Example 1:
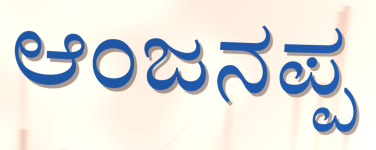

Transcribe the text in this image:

ಆಂಜನಪ್ಪ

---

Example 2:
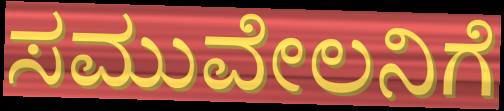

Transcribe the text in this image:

ಸಮುವೇಲನಿಗೆ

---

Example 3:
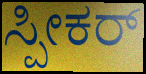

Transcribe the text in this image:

ಸ್ಪೀಕರ್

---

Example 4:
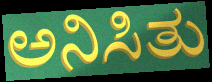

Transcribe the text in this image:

ಅನಿಸಿತು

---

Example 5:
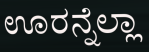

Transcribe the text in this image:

ಊರನ್ನೆಲ್ಲಾ